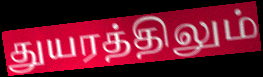
துயரத்திலும்